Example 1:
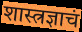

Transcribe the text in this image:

शास्त्रज्ञाचं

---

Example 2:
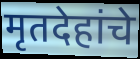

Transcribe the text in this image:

मृतदेहांचे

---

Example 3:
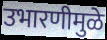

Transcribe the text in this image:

उभारणीमुळे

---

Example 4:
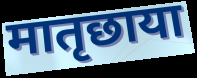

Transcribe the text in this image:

मातृछाया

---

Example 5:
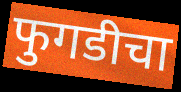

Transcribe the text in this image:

फुगडीचा